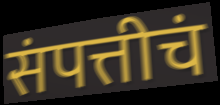
संपत्तीचं